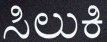
ಸಿಲುಕಿ